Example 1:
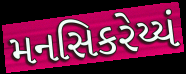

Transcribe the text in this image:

મનસિકરેય્યં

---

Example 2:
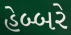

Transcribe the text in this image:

હેબ્બરે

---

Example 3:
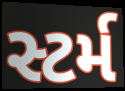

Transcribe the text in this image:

સ્ટર્મ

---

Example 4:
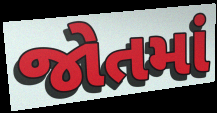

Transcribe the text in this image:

જોતમાં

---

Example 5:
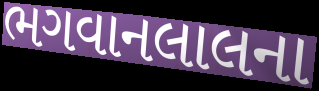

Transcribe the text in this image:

ભગવાનલાલના